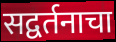
सद्वर्तनाचा